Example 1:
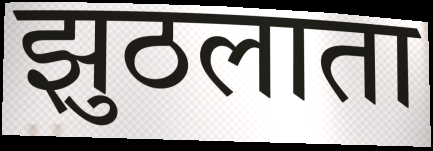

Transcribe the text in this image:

झुठलाता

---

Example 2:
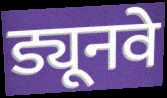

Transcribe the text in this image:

ड्यूनवे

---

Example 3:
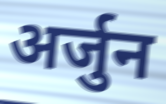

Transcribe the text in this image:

अर्जुन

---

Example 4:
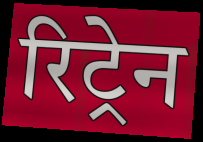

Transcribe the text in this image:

रिट्रेन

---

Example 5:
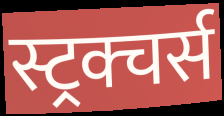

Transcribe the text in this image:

स्ट्रक्चर्स